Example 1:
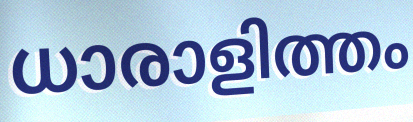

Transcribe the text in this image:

ധാരാളിത്തം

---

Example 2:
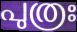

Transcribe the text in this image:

പുത്രഃ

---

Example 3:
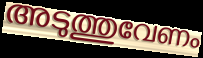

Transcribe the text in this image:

അടുത്തുവേണം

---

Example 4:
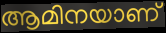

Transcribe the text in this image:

ആമിനയാണ്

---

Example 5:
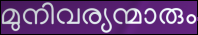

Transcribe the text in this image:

മുനിവര്യന്മാരും